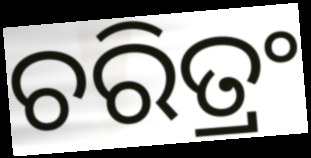
ଚରିତ୍ରଂ